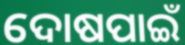
ଦୋଷପାଇଁ